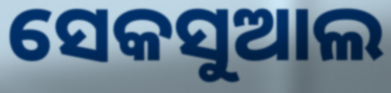
ସେକସୁଆଲ